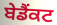
ਬੇਡੈਂਕਟ